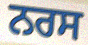
ਨਰਸ